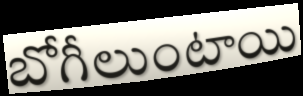
బోగీలుంటాయి